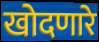
खोदणारे